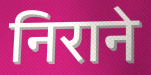
निराने